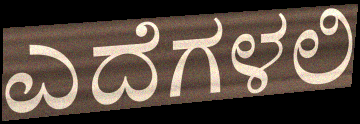
ಎದೆಗಳಲಿ